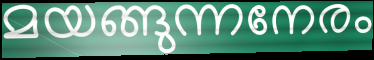
മയങ്ങുന്നനേരം